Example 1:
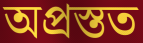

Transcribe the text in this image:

অপ্রস্তত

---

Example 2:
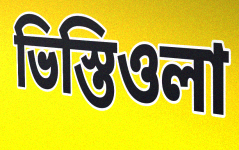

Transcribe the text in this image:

ভিস্তিওলা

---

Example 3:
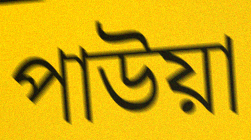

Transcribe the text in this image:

পাউয়া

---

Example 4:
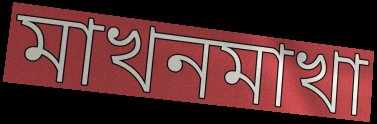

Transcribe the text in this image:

মাখনমাখা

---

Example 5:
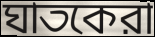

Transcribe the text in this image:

ঘাতকেরা